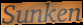
Sunken